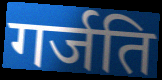
गर्जति